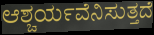
ಆಶ್ಚರ್ಯವೆನಿಸುತ್ತದೆ